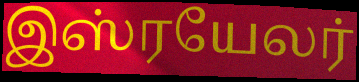
இஸ்ரயேலர்